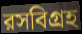
রসবিগ্রহ